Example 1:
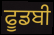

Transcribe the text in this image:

ਫੂਡਬੀ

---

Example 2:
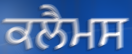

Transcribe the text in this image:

ਕਲੈਮਸ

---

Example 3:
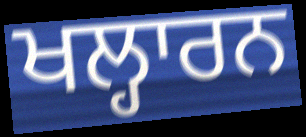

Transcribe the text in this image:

ਖਲ੍ਹਾਰਨ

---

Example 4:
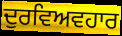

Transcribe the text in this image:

ਦੁਰਵਿਅਵਹਾਰ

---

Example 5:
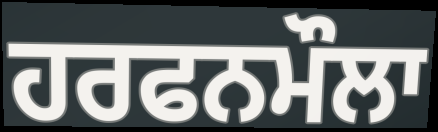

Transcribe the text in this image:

ਹਰਫਨਮੌਲਾ